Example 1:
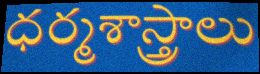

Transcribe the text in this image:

ధర్మశాస్త్రాలు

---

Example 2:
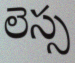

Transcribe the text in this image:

లెస్స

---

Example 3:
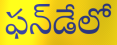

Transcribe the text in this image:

ఫన్‌డేలో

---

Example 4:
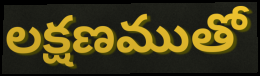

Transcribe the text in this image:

లక్షణముతో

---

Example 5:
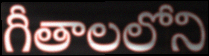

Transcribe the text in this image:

గీతాలలోని